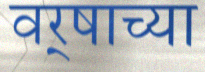
वर्षाच्या